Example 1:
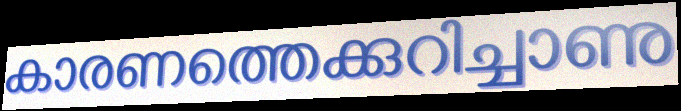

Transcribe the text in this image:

കാരണത്തെക്കുറിച്ചാണു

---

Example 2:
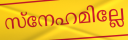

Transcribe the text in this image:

സ്നേഹമില്ലേ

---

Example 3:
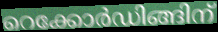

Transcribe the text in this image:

റെക്കോർഡിങ്ങിന്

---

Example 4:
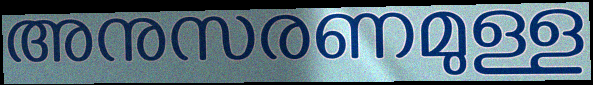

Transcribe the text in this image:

അനുസരണമുള്ള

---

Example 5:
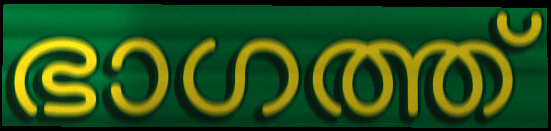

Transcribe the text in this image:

ഭാഗത്ത്